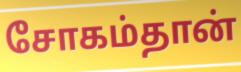
சோகம்தான்